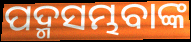
ପଦ୍ମସମ୍ଭବାଙ୍କ